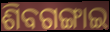
ଶିବଗଙ୍ଗାଇ